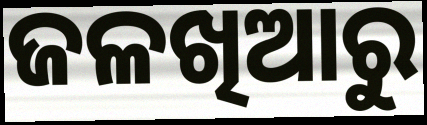
ଜଳଖିଆରୁ